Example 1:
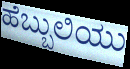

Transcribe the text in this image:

ಹೆಬ್ಬುಲಿಯು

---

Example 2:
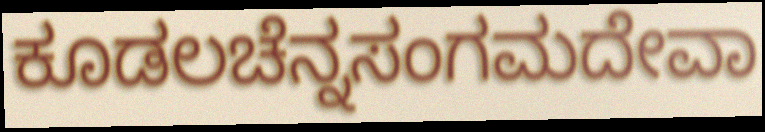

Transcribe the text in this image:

ಕೂಡಲಚೆನ್ನಸಂಗಮದೇವಾ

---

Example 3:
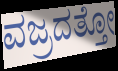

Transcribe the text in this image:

ವಜ್ರದತ್ತೋ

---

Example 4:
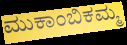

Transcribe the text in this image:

ಮುಕಾಂಬಿಕಮ್ಮ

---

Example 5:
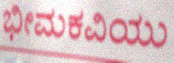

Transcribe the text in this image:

ಭೀಮಕವಿಯು